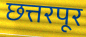
छत्तरपूर